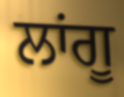
ਲਾਂਗੂ